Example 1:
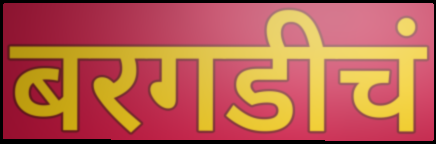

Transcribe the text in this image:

बरगडीचं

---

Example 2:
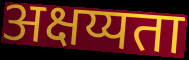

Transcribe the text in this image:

अक्षय्यता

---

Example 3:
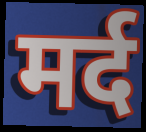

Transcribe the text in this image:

मर्द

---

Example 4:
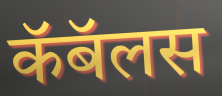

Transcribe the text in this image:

कॅबॅलस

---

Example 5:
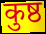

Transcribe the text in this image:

कुष्ठ